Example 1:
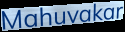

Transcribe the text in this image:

Mahuvakar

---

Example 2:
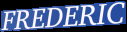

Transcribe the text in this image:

FREDERIC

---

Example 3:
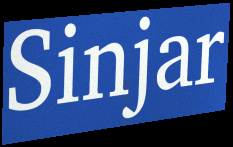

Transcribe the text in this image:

Sinjar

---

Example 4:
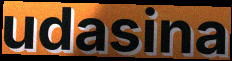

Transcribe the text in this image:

udasina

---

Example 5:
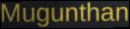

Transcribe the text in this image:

Mugunthan